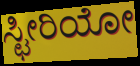
ಸ್ಟೀರಿಯೋ